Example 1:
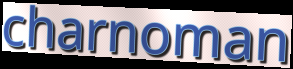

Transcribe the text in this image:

charnoman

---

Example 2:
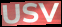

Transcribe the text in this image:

USV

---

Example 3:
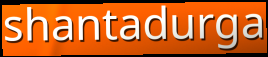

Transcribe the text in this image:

shantadurga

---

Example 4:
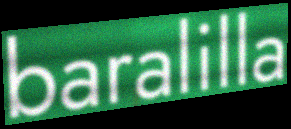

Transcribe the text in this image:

baralilla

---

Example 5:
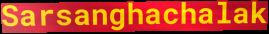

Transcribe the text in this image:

Sarsanghachalak